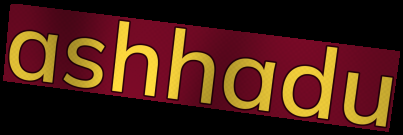
ashhadu